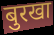
बुरखा